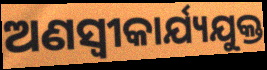
ଅଣସ୍ବୀକାର୍ଯ୍ୟଯୁକ୍ତ